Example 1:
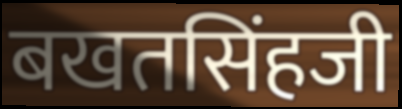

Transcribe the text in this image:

बखतसिंहजी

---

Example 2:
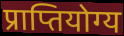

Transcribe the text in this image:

प्राप्तियोग्य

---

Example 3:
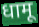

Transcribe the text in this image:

धामू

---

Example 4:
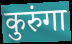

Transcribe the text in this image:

कुरुंगा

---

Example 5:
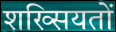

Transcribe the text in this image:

शख्सियतों